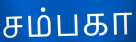
சம்பகா